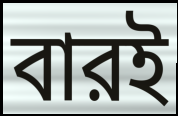
বারই